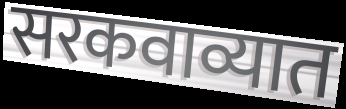
सरकवाव्यात